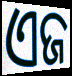
ଏଜ